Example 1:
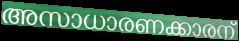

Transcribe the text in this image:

അസാധാരണക്കാരന്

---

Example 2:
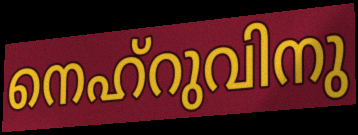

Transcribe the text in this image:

നെഹ്റുവിനു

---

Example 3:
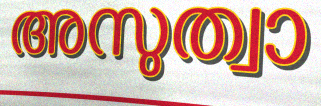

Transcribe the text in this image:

അസുത്വാ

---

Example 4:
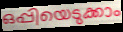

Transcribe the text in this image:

ഒപ്പിയെടുക്കാം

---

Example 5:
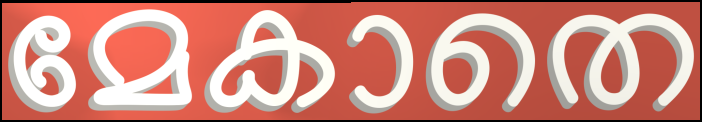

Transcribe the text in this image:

മേകാതെ